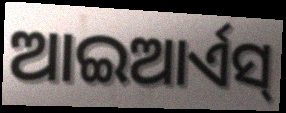
ଆଇଆର୍ଏସ୍